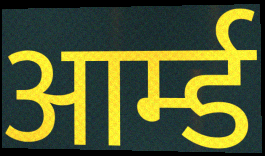
आर्म्ड